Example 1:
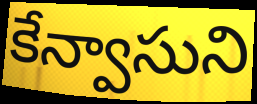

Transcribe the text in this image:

కేన్వాసుని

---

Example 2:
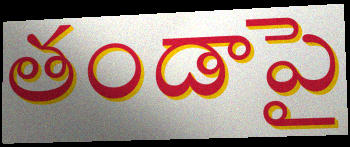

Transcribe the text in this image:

తండాపై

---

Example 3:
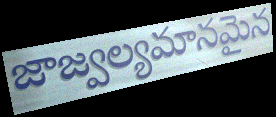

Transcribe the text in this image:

జాజ్వల్యమానమైన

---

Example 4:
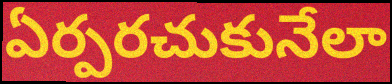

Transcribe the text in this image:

ఏర్పరచుకునేలా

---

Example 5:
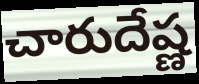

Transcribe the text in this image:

చారుదేష్ణ